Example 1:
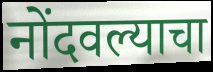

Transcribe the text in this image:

नोंदवल्याचा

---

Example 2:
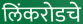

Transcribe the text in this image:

लिंकरोडचे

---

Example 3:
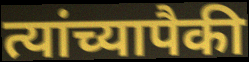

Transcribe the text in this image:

त्यांच्यापैकी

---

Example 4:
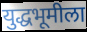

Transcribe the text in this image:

युद्धभूमीला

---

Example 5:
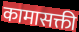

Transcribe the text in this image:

कामासक्ती